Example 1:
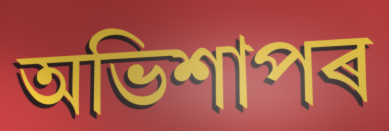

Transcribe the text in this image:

অভিশাপৰ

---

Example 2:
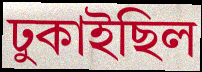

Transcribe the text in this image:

ঢুকাইছিল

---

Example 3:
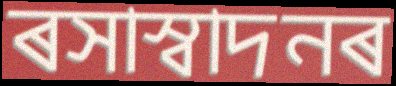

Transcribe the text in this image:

ৰসাস্বাদনৰ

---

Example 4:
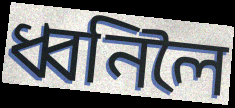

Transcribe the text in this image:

ধ্বনিলৈ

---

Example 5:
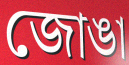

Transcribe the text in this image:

জোঙা